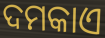
ଦମକାଏ